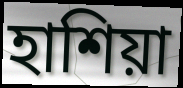
হাশিয়া